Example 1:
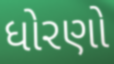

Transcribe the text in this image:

ધોરણો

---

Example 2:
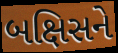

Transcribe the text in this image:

બક્ષિસને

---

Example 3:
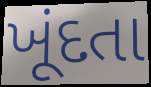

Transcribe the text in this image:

ખૂંદતા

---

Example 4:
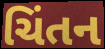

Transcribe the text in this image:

ચિંતન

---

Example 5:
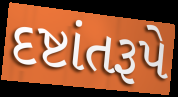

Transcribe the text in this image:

દષ્ટાંતરૂપે